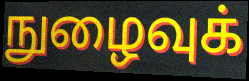
நுழைவுக்